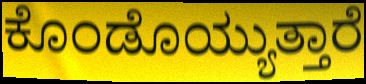
ಕೊಂಡೊಯ್ಯುತ್ತಾರೆ